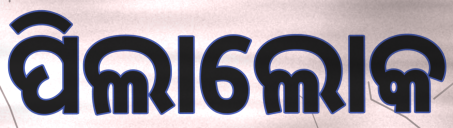
ପିଲାଲୋକ